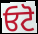
ਓਟੋ